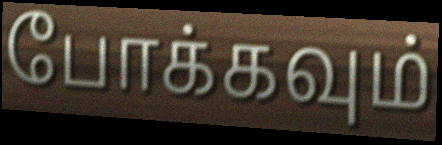
போக்கவும்